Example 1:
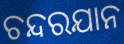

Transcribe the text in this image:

ଚନ୍ଦରଯାନ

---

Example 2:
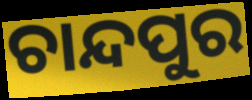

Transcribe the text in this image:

ଚାନ୍ଦପୁର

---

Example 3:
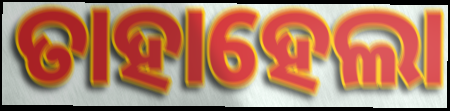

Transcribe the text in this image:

ତାହାହେଲା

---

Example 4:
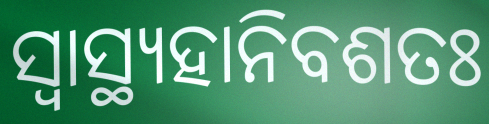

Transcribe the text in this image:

ସ୍ୱାସ୍ଥ୍ୟହାନିବଶତଃ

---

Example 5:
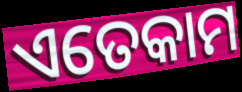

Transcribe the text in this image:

ଏତେକାମ